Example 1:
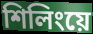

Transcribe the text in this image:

শিলিংয়ে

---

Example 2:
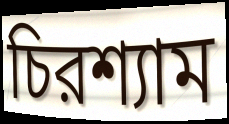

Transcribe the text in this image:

চিরশ্যাম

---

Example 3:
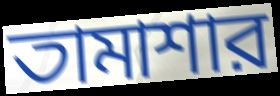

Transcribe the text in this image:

তামাশার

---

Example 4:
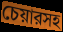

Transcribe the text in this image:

চেয়ারসহ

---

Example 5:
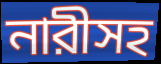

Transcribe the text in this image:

নারীসহ